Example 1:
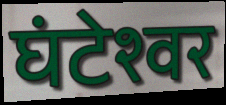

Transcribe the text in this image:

घंटेश्वर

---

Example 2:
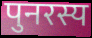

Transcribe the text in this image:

पुनरस्य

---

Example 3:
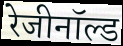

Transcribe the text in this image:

रेजीनॉल्ड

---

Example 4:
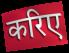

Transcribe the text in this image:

करिए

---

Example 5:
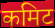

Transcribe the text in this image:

कमिट